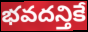
భవదన్తికే